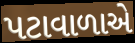
પટાવાળાએ